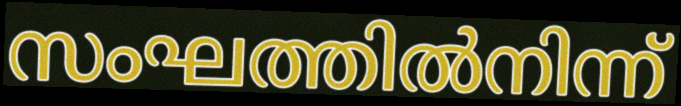
സംഘത്തിൽനിന്ന്